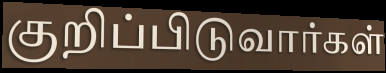
குறிப்பிடுவார்கள்